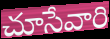
చూసేవారి